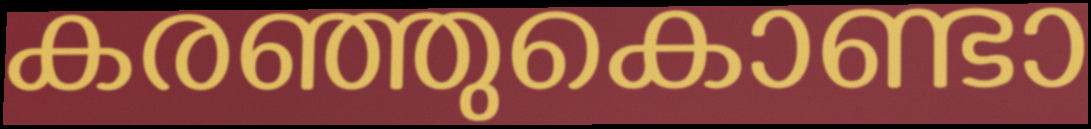
കരഞ്ഞുകൊണ്ടാ